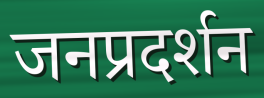
जनप्रदर्शन